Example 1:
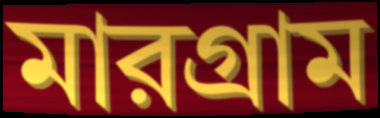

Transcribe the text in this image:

মারগ্রাম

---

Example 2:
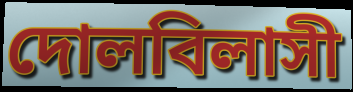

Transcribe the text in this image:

দোলবিলাসী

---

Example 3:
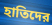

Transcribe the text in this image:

হাতিদের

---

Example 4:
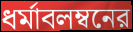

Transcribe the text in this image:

ধর্মাবলম্বনের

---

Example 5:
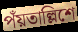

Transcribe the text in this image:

পঁয়তাল্লিশে